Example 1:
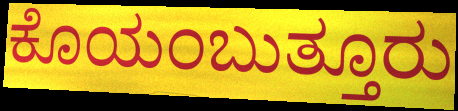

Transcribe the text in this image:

ಕೊಯಂಬುತ್ತೂರು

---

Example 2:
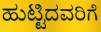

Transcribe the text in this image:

ಹುಟ್ಟಿದವರಿಗೆ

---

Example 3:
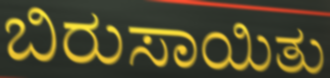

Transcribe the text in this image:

ಬಿರುಸಾಯಿತು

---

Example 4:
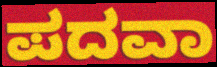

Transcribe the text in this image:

ಪದವಾ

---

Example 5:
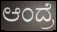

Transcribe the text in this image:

ಆಂದ್ರೆ